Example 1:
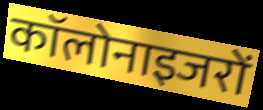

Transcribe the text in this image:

कॉलोनाइजरों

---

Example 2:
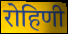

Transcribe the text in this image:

रोहिणी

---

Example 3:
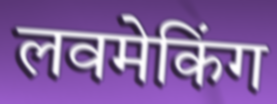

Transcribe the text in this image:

लवमेकिंग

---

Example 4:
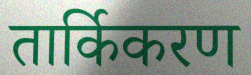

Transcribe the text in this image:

तार्किकरण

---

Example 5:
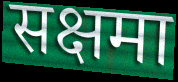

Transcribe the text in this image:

सक्षमा